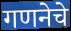
गणनेचे